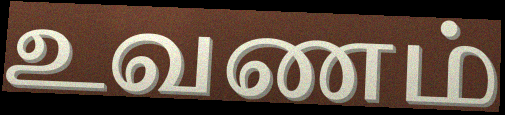
உவணம்